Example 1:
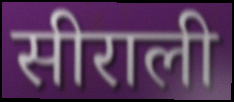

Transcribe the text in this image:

सीराली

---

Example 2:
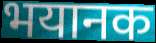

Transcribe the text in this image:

भयानक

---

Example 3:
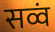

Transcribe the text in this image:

सव्वं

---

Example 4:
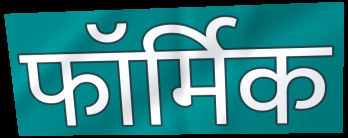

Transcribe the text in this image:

फॉर्मिक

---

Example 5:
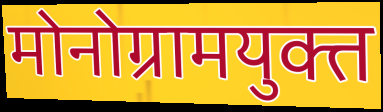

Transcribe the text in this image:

मोनोग्रामयुक्त